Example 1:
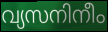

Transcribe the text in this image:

വ്യസനിനീം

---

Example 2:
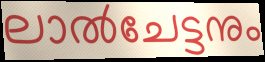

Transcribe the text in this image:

ലാൽചേട്ടനും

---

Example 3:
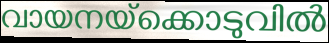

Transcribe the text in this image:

വായനയ്‌ക്കൊടുവിൽ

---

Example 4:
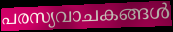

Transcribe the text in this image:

പരസ്യവാചകങ്ങൾ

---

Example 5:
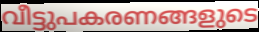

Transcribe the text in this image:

വീട്ടുപകരണങ്ങളുടെ